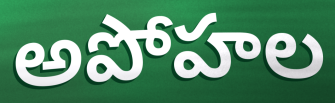
అపోహల